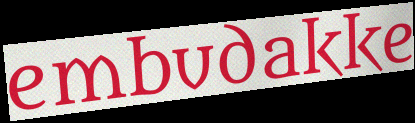
embudakke